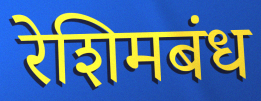
रेशिमबंध